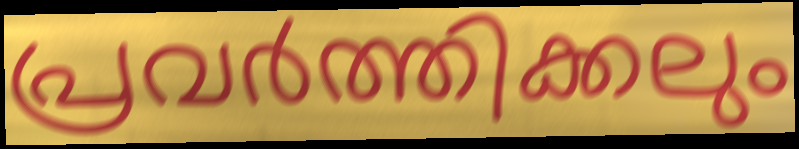
പ്രവർത്തിക്കലും